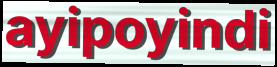
ayipoyindi